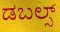
ಡಬಲ್ಸ್